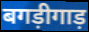
बगड़ीगाड़